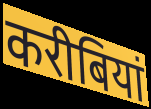
करीबियां